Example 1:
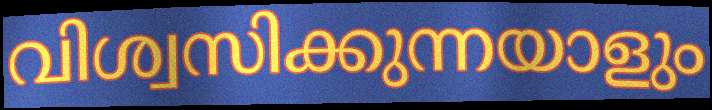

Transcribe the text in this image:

വിശ്വസിക്കുന്നയാളും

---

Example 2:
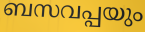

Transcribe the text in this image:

ബസവപ്പയും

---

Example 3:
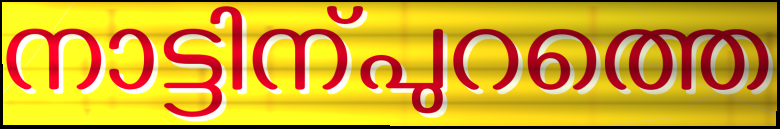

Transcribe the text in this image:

നാട്ടിന്പുറത്തെ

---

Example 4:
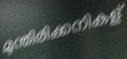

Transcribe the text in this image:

മുന്തിരിക്കനികള്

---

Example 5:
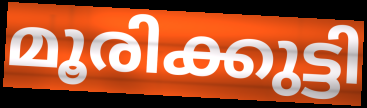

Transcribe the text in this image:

മൂരിക്കുട്ടി